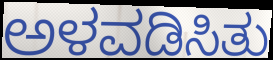
ಅಳವಡಿಸಿತು